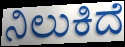
ನಿಲುಕಿದೆ